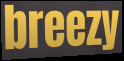
breezy